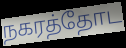
நகரத்தோட